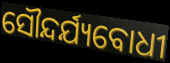
ସୌନ୍ଦର୍ଯ୍ୟବୋଧୀ